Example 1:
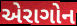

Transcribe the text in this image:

એરાગોન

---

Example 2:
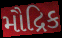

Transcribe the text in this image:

મૌદ્રિક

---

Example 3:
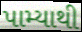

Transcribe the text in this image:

પામ્યાથી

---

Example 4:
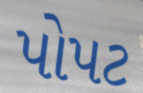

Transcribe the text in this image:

પોપટ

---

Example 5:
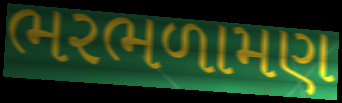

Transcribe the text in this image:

ભરભળામણ